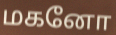
மகனோ